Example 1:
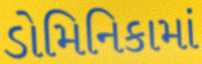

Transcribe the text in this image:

ડોમિનિકામાં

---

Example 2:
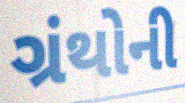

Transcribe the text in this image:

ગ્રંથોની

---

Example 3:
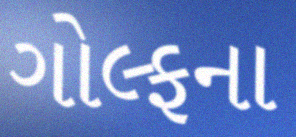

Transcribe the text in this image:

ગોલ્ફના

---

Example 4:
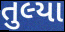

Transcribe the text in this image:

તુલ્યા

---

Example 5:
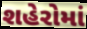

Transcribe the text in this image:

શહેરોમાં